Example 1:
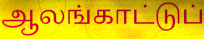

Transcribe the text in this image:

ஆலங்காட்டுப்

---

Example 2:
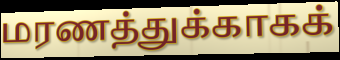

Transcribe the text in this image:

மரணத்துக்காகக்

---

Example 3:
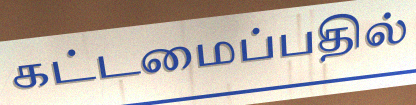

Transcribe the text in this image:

கட்டமைப்பதில்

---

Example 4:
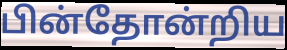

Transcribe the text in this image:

பின்தோன்றிய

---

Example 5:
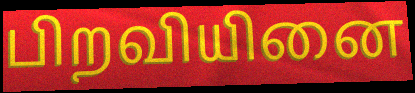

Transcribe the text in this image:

பிறவியினை